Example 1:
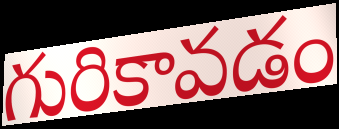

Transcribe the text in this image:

గురికావడం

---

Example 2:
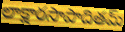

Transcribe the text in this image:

లాక్షారసాపాదితమ్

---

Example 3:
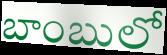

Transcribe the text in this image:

బాంబులో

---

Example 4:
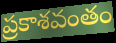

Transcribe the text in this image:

ప్రకాశవంతం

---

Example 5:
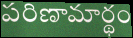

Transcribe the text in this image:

పరిణామార్థం